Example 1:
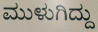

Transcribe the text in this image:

ಮುಳುಗಿದ್ದು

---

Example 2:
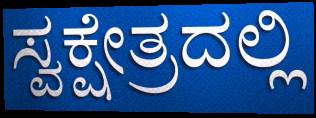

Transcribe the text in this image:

ಸ್ವಕ್ಷೇತ್ರದಲ್ಲಿ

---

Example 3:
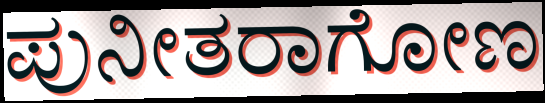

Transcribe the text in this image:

ಪುನೀತರಾಗೋಣ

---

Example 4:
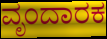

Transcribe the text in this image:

ವೃಂದಾರಕ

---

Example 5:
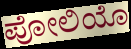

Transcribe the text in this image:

ಪೋಲಿಯೊ